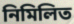
নিমিলিত